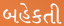
બહેકતી